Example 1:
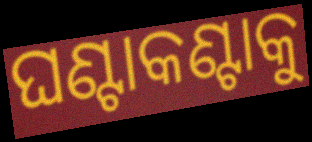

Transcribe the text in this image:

ଘଣ୍ଟାକଣ୍ଟାକୁ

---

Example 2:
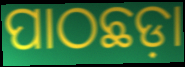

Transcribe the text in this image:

ପାଠଛଡ଼ା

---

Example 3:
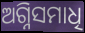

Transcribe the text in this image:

ଅଗ୍ନିସମାଧି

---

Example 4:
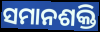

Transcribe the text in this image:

ସମାନଶକ୍ତି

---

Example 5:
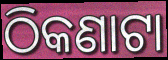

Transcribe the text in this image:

ଠିକଣାଟା